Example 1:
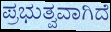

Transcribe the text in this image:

ಪ್ರಭುತ್ವವಾಗಿದೆ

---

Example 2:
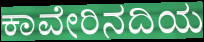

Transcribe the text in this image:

ಕಾವೇರಿನದಿಯ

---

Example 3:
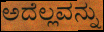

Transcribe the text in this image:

ಅದೆಲ್ಲವನ್ನು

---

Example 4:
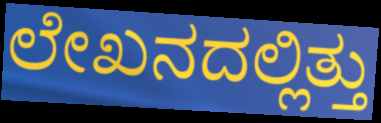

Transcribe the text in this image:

ಲೇಖನದಲ್ಲಿತ್ತು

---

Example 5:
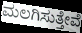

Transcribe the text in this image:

ಮಲಗಿಸುತ್ತೇವೆ